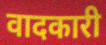
वादकारी